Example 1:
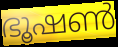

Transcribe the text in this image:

ഭൂഷൺ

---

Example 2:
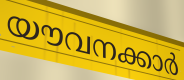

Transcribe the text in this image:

യൗവനക്കാർ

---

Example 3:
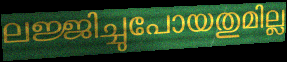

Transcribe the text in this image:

ലജ്ജിച്ചുപോയതുമില്ല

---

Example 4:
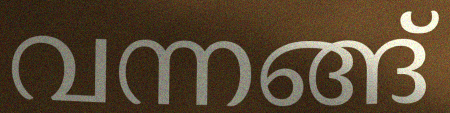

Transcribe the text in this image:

വന്നങ്ങ്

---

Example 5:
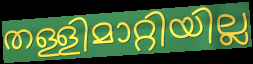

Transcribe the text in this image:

തള്ളിമാറ്റിയില്ല